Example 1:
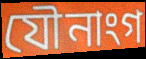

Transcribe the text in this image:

যৌনাংগ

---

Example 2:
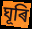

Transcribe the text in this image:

ঘূৰি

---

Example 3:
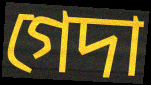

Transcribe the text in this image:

গেদা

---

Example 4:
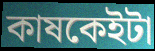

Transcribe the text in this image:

কাষকেইটা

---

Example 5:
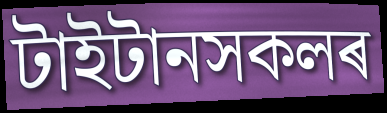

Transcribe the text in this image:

টাইটানসকলৰ